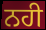
ਨਹੀ